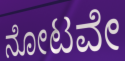
ನೋಟವೇ